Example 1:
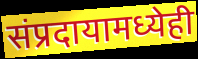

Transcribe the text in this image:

संप्रदायामध्येही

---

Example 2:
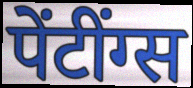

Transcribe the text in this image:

पेंटींग्स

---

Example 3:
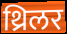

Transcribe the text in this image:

थ्रिलर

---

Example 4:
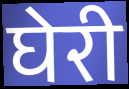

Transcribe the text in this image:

घेरी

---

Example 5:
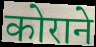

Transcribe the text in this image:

कोराने